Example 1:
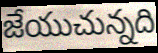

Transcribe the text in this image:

జేయుచున్నది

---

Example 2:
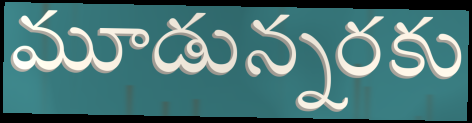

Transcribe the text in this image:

మూడున్నరకు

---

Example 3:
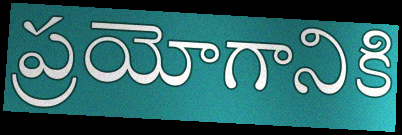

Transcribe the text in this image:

ప్రయోగానికి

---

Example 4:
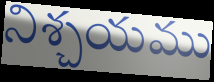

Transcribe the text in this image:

నిశ్చయము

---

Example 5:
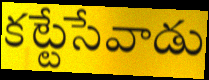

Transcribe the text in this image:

కట్టేసేవాడు